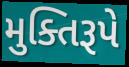
મુક્તિરૂપે